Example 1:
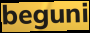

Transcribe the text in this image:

beguni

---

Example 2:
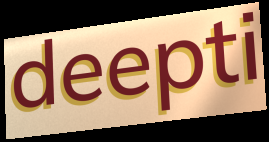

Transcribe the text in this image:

deepti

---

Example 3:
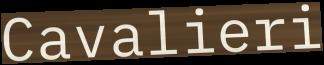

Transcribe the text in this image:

Cavalieri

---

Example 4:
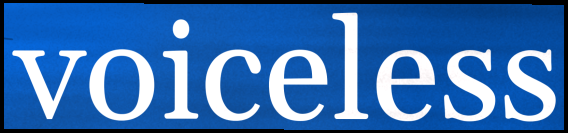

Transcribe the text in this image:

voiceless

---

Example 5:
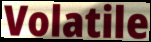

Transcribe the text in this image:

Volatile